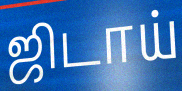
ஜிடாய்